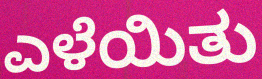
ಎಳೆಯಿತು